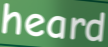
heard